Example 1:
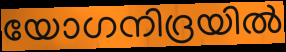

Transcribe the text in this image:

യോഗനിദ്രയിൽ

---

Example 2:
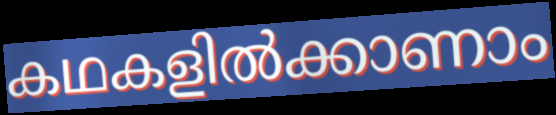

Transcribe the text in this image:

കഥകളിൽക്കാണാം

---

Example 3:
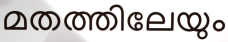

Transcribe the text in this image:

മതത്തിലേയും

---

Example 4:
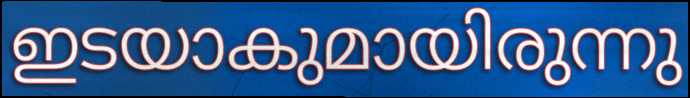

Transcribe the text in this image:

ഇടയാകുമായിരുന്നു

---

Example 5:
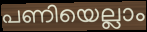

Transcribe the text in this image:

പണിയെല്ലാം